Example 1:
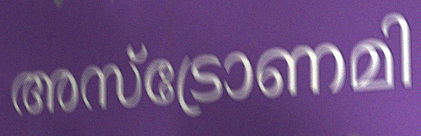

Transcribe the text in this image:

അസ്ട്രോണമി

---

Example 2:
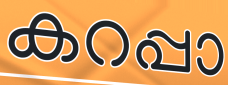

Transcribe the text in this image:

കറപ്പാ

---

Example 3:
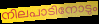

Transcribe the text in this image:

നിലപാടിനോടും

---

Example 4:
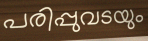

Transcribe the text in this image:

പരിപ്പുവടയും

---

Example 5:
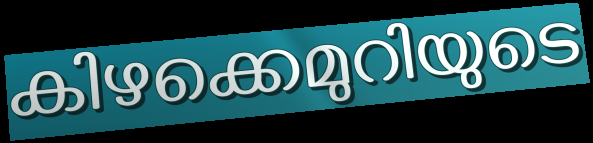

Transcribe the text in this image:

കിഴക്കെമുറിയുടെ